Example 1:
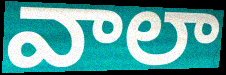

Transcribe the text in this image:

వాలా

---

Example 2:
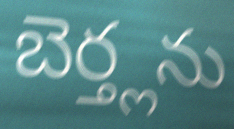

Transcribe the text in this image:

బెర్త్లను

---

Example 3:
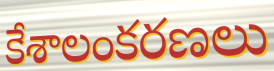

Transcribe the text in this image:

కేశాలంకరణలు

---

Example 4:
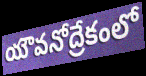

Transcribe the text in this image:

యౌవనోద్రేకంలో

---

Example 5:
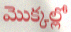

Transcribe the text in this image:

మొక్కల్లో